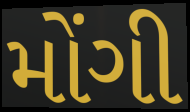
મોંગી